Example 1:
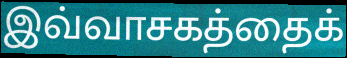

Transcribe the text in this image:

இவ்வாசகத்தைக்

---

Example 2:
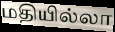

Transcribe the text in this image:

மதியில்லா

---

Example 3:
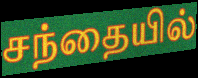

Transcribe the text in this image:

சந்தையில்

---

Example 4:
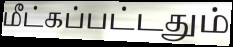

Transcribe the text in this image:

மீட்கப்பட்டதும்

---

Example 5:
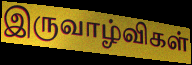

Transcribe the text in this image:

இருவாழ்விகள்